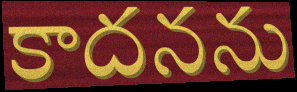
కాదనను